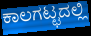
ಕಾಲಗಟ್ಟದಲ್ಲಿ